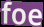
foe